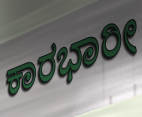
ಕಾರಭಾರೀ